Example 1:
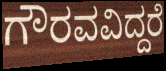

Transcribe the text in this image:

ಗೌರವವಿದ್ದರೆ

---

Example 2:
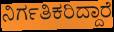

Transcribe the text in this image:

ನಿರ್ಗತಿಕರಿದ್ದಾರೆ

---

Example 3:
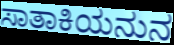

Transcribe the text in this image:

ಸಾತಾಕಿಯನುನ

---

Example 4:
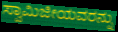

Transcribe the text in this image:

ಸ್ವಾಮಿಜೀಯವರನ್ನು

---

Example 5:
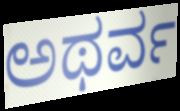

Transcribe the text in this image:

ಅಥರ್ವ